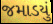
જમાડયું